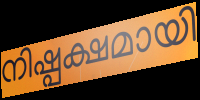
നിഷ്പക്ഷമായി